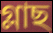
গ্লাছ